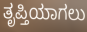
ತೃಪ್ತಿಯಾಗಲು